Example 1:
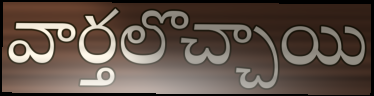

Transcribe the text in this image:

వార్తలొచ్చాయి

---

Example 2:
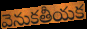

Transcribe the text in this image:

వెనుకతీయక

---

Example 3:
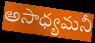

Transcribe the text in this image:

అసాధ్యమనీ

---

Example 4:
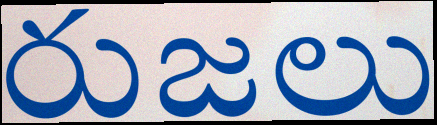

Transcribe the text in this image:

రుజలు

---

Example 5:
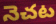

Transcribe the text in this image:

నెచట